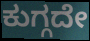
ಕುಗ್ಗದೇ